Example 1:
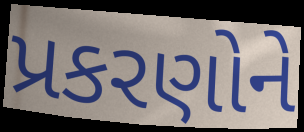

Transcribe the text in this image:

પ્રકરણોને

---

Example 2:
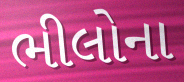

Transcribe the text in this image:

ભીલોના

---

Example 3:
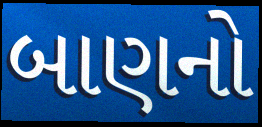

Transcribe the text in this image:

બાણનો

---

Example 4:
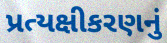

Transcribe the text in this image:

પ્રત્યક્ષીકરણનું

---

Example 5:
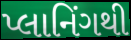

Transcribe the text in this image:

પ્લાનિંગથી